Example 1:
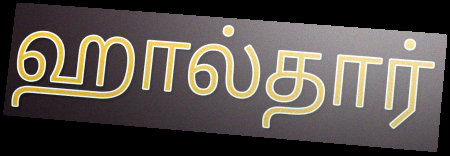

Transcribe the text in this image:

ஹால்தார்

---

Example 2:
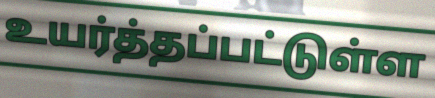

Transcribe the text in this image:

உயர்த்தப்பட்டுள்ள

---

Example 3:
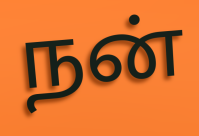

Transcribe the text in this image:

நன்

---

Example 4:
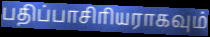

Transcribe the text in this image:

பதிப்பாசிரியராகவும்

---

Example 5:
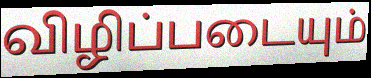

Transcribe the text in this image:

விழிப்படையும்